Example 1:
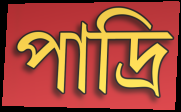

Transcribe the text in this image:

পাদ্রি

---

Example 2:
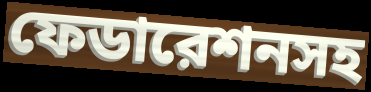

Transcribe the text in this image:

ফেডারেশনসহ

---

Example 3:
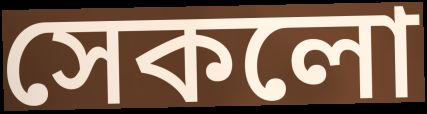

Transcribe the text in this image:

সেকলো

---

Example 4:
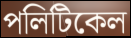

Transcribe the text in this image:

পলিটিকেল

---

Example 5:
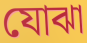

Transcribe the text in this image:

যোঝা